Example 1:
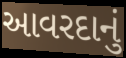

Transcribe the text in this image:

આવરદાનું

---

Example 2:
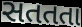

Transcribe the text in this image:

સતતતા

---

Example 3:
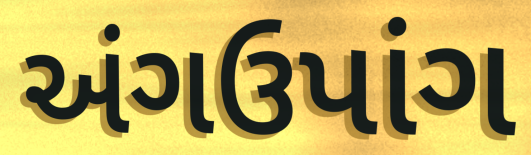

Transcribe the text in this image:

અંગઉપાંગ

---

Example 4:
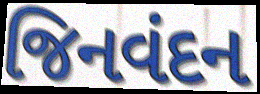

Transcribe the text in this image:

જિનવંદન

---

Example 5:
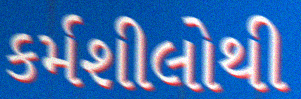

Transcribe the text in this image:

કર્મશીલોથી